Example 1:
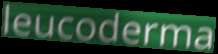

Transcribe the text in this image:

leucoderma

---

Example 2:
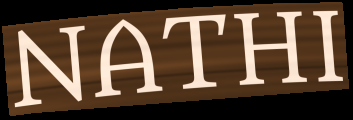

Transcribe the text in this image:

NATHI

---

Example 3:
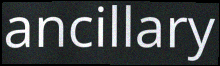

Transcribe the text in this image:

ancillary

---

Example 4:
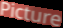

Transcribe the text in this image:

Picture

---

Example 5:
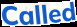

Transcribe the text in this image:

Called